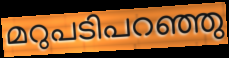
മറുപടിപറഞ്ഞു